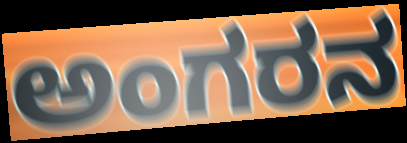
ಅಂಗರನ